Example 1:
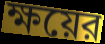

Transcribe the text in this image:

ক্ষয়ের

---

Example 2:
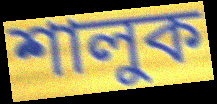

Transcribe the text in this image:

শালুক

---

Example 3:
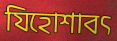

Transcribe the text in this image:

যিহোশাবৎ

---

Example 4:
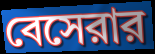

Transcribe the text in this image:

বেসেরার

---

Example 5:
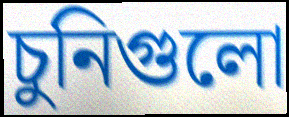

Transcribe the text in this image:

চুনিগুলো